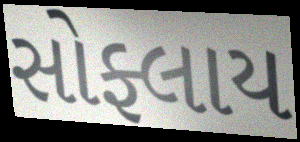
સોફ્લાય